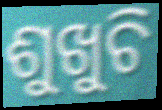
ଶୁଖୁଚି